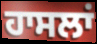
ਹਾਸਲਾਂ